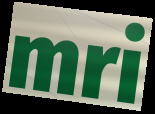
mri